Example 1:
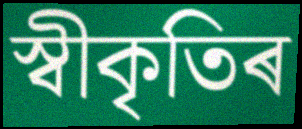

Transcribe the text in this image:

স্বীকৃতিৰ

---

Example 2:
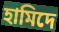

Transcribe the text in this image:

হামিদে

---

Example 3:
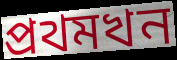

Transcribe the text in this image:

প্ৰথমখন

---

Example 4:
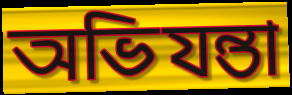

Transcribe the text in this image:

অভিযন্তা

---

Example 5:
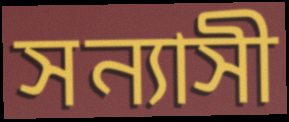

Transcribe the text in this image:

সন্যাসী